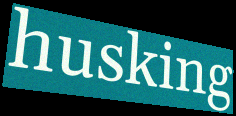
husking